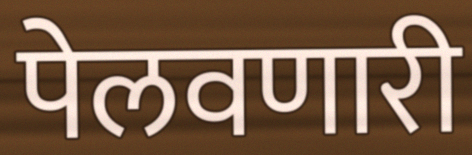
पेलवणारी